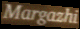
Margazhi